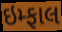
ઇમ્ફાલ